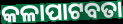
କଳାପାଟବତା